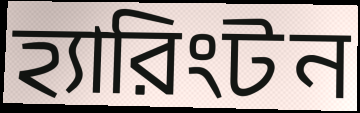
হ্যারিংটন